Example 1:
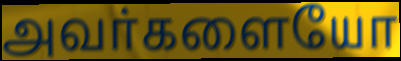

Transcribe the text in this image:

அவர்களையோ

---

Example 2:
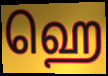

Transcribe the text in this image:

ஹெ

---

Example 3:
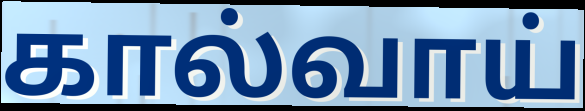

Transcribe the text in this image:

கால்வாய்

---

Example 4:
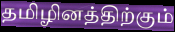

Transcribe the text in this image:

தமிழினத்திற்கும்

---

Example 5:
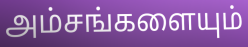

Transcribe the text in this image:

அம்சங்களையும்